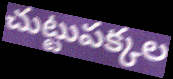
చుట్టుపక్కల